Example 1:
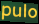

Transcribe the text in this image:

pulo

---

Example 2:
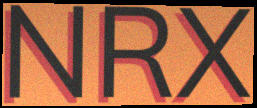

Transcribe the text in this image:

NRX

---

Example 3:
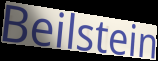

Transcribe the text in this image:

Beilstein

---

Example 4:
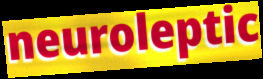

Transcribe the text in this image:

neuroleptic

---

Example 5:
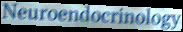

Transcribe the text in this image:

Neuroendocrinology